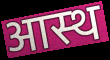
आस्थ